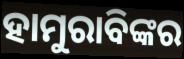
ହାମୁରାବିଙ୍କର